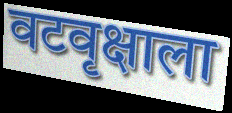
वटवृक्षाला